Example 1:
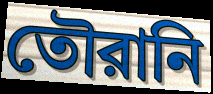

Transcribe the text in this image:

তৌরানি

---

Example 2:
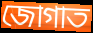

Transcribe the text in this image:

জোগাত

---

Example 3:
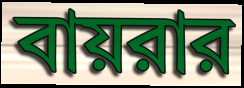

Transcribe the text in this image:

বায়রার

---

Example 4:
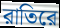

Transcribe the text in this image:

রাতিরে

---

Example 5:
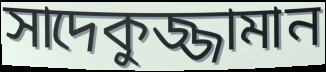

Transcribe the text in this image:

সাদেকুজ্জামান